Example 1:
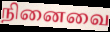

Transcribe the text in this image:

நினைவை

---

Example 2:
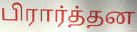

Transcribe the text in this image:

பிரார்த்தன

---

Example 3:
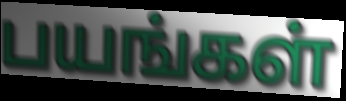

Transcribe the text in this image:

பயங்கள்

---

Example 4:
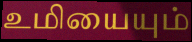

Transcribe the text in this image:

உமியையும்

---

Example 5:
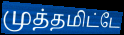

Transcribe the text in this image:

முத்தமிட்டே